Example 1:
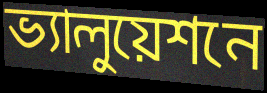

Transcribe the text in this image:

ভ্যালুয়েশনে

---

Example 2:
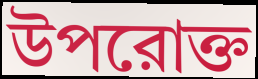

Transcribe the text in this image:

উপরোক্ত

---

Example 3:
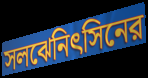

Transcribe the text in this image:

সলঝেনিৎসিনের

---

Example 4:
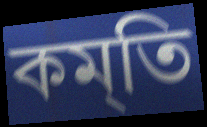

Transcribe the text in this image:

কম্‌তি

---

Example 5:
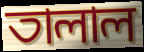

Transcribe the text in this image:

তালাল